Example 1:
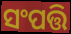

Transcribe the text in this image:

ସଂପତ୍ତି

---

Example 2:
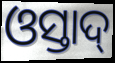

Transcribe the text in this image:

ଓସ୍ତାଦ୍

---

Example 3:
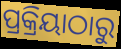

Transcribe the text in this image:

ପ୍ରକ୍ରିୟାଠାରୁ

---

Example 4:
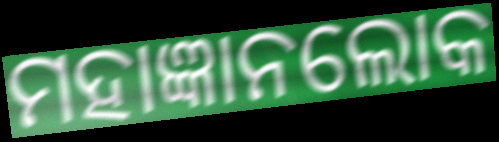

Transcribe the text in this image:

ମହାଜ୍ଞାନଲୋକ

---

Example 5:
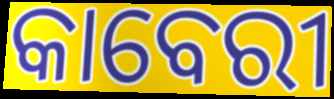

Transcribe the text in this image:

କାବେରୀ